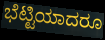
ಭೆಟ್ಟಿಯಾದರೂ